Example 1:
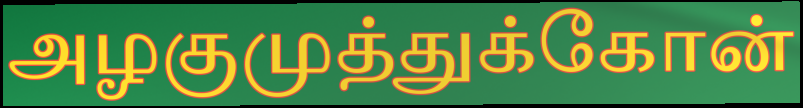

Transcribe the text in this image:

அழகுமுத்துக்கோன்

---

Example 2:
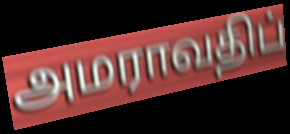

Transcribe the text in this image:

அமராவதிப்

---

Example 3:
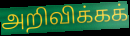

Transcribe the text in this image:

அறிவிக்கக்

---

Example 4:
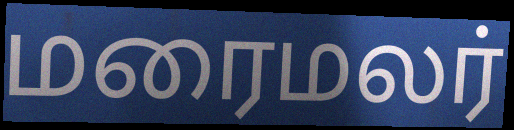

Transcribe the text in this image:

மரைமலர்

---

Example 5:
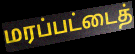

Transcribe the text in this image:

மரப்பட்டைத்